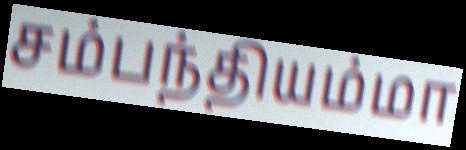
சம்பந்தியம்மா